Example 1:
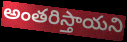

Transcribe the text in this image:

అంతరిస్తాయని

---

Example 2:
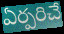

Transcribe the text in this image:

ఏర్పరిచే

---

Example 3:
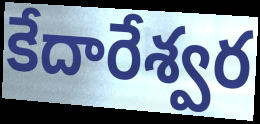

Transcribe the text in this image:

కేదారేశ్వర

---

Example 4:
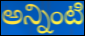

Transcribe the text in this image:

అన్నింటి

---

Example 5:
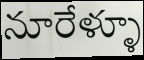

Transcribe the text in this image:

నూరేళ్ళూ